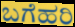
ಬಗೆಹರಿ